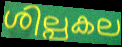
ശില്പകല